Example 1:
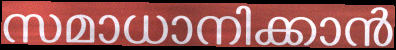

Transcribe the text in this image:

സമാധാനിക്കാൻ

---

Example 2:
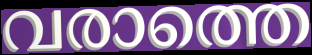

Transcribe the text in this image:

വരാത്തെ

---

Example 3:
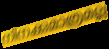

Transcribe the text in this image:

നിനക്കുമാത്രമല്ല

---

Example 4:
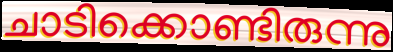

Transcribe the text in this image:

ചാടിക്കൊണ്ടിരുന്നു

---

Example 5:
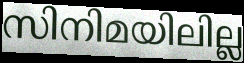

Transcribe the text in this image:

സിനിമയിലില്ല